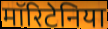
मॉरिटेनिया